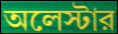
অলেস্টার